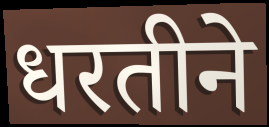
धरतीने